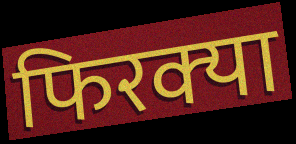
फिरक्या